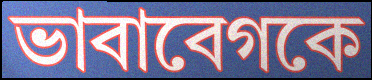
ভাবাবেগকে